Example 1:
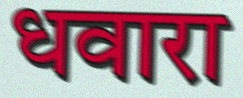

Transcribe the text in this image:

धवारा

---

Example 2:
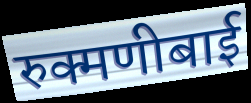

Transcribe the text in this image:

रुक्मणीबाई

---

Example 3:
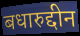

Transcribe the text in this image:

बधारुद्दीन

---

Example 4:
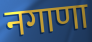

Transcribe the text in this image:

नगाणा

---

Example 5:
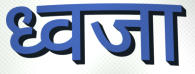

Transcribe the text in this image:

ध्वजा